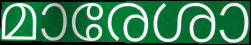
മാരേശാ